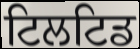
ਟਿਲਟਿਡ